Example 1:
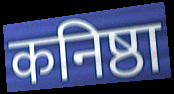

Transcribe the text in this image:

कनिष्ठा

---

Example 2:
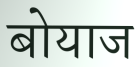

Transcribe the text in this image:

बोयाज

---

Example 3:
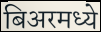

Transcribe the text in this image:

बिअरमध्ये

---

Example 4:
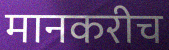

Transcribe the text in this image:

मानकरीच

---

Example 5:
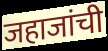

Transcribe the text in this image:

जहाजांची